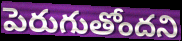
పెరుగుతోందని